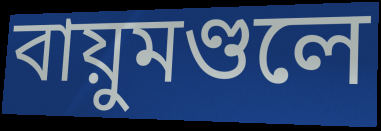
বায়ুমণ্ডলে